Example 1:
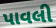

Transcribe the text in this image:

પાવલી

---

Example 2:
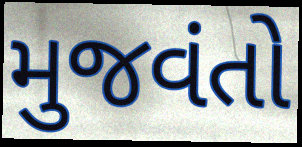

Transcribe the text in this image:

મુજવંતો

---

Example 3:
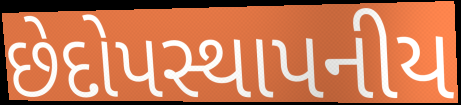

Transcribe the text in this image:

છેદોપસ્થાપનીય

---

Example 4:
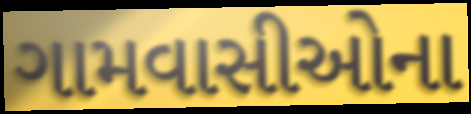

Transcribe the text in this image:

ગામવાસીઓના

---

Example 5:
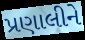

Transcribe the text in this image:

પ્રણાલીને